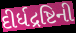
દીર્ધદ્રષ્ટિની